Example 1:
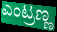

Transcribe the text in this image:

ಎಂಟ್ರಣ್ಣ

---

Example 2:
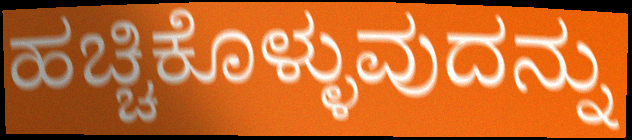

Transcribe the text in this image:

ಹಚ್ಚಿಕೊಳ್ಳುವುದನ್ನು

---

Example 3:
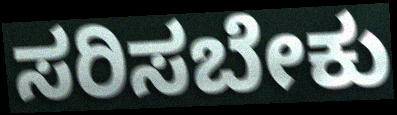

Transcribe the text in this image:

ಸರಿಸಬೇಕು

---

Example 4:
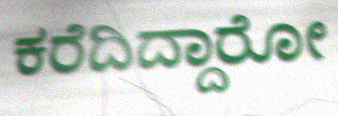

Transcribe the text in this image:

ಕರೆದಿದ್ದಾರೋ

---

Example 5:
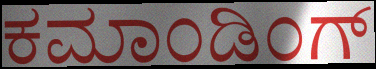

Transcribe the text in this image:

ಕಮಾಂಡಿಂಗ್